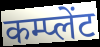
कम्प्लेंट